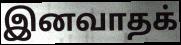
இனவாதக்